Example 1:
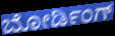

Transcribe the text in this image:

ಬೋರ್ಡಿಂಗ್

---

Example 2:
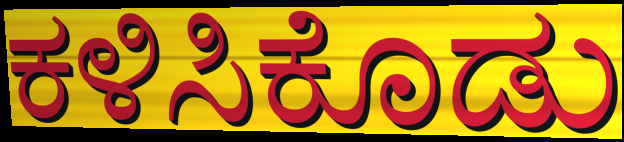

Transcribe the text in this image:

ಕಳಿಸಿಕೊಡು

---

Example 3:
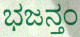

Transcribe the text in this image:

ಭಜನ್ತಂ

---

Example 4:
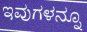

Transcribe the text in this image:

ಇವುಗಳನ್ನೂ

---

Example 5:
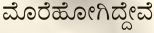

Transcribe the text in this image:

ಮೊರೆಹೋಗಿದ್ದೇವೆ